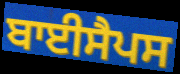
ਬਾਈਸੈਪਸ